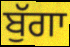
ਬੁੱਗਾ